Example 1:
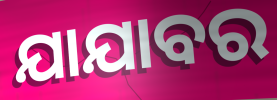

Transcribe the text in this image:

ଯାଯାବର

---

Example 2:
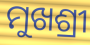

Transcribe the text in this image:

ମୁଖଶ୍ରୀ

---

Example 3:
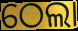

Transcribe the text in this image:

ଠେଲା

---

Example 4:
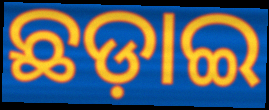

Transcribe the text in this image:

ଛଡ଼ାଇ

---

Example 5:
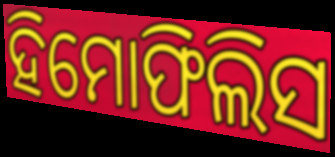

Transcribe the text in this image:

ହିମୋଫିଲିସ